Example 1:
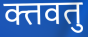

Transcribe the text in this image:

क्तवतु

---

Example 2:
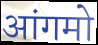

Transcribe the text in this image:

आंगमो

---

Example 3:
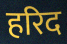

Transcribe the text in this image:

हरिद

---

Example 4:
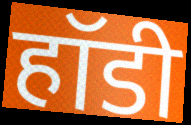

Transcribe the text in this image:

हॉडी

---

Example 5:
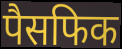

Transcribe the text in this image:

पैसफिक